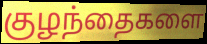
குழந்தைகளை